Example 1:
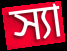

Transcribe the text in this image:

স্যা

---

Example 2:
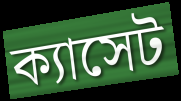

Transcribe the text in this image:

ক্যাসেট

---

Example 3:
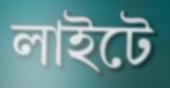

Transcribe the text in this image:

লাইটে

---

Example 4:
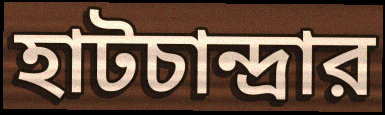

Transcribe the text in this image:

হাটচান্দ্রার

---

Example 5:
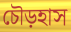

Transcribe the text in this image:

চৌড়হাস